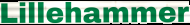
Lillehammer